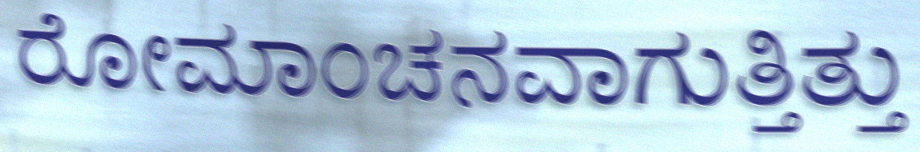
ರೋಮಾಂಚನವಾಗುತ್ತಿತ್ತು